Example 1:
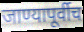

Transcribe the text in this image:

जाण्यापूर्वीच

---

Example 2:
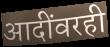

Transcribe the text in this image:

आदींवरही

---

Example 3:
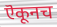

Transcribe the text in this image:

ऎकूनच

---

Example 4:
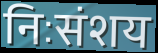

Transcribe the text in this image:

निःसंशय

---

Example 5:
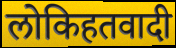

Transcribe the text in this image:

लोकिहतवादी